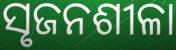
ସୃଜନଶୀଳା